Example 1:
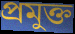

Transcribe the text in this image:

প্রমুক্ত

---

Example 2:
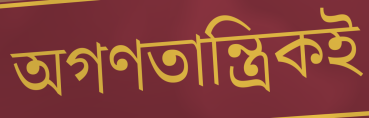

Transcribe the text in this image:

অগণতান্ত্রিকই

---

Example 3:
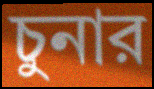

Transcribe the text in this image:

চুনার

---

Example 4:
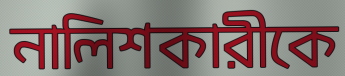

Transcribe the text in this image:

নালিশকারীকে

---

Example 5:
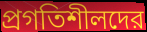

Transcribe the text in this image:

প্রগতিশীলদের